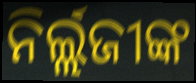
ନିର୍ଲ୍ଲଜୀଙ୍କ